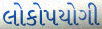
લોકોપયોગી